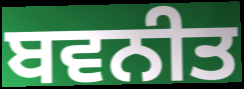
ਬਵਨੀਤ